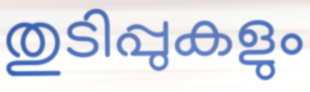
തുടിപ്പുകളും